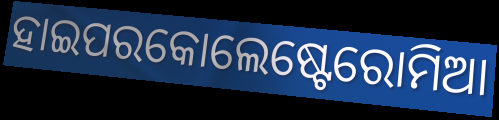
ହାଇପରକୋଲେଷ୍ଟେରୋମିଆ